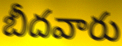
బీదవారు